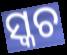
ସ୍କଚ